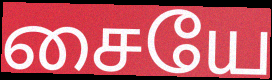
சையே